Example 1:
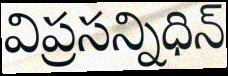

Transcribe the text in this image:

విప్రసన్నిధిన్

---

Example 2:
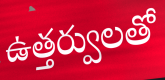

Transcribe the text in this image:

ఉత్తర్వులతో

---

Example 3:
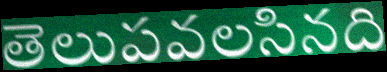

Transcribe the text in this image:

తెలుపవలసినది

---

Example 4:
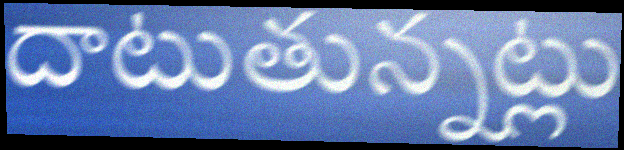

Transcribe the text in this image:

దాటుతున్నట్లు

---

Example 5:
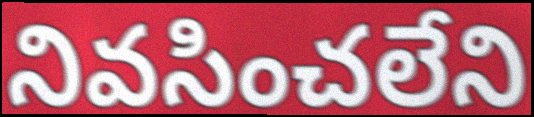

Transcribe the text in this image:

నివసించలేని